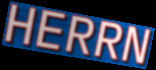
HERRN